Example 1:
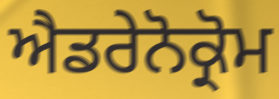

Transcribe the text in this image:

ਐਡਰੇਨੋਕ੍ਰੋਮ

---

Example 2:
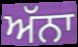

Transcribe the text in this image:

ਅੱਨਾ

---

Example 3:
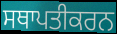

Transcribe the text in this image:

ਸਥਾਪਤੀਕਰਨ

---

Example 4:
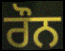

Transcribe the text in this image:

ਰੌਨ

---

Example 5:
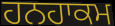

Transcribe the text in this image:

ਹਨਹਾਕਮ